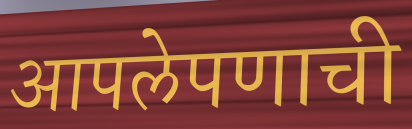
आपलेपणाची